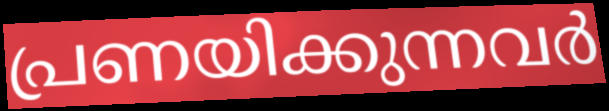
പ്രണയിക്കുന്നവർ